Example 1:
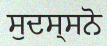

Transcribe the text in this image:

ਸੁਦਸ੍ਸਨੋ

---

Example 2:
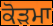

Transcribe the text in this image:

ਕੋੜਮਾ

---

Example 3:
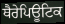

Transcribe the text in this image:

ਥੈਰੇਪਿਊਟਿਕ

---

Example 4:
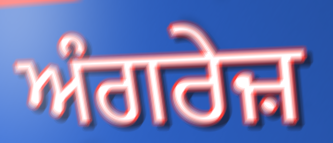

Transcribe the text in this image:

ਅੰਗਰੇਜ਼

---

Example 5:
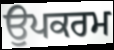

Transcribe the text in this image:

ਉਪਕਰਮ